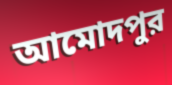
আমোদপুর